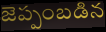
జెప్పంబడిన